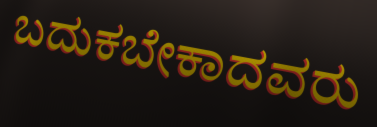
ಬದುಕಬೇಕಾದವರು